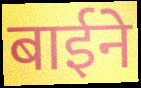
बाईने